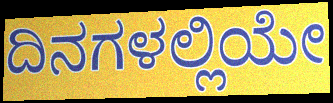
ದಿನಗಳಲ್ಲಿಯೇ